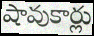
షావుకార్లు